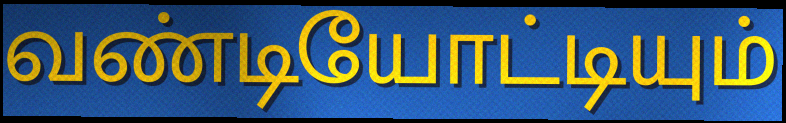
வண்டியோட்டியும்